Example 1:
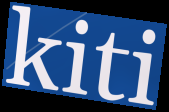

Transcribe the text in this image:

kiti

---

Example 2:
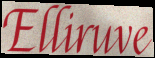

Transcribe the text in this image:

Elliruve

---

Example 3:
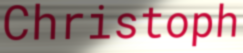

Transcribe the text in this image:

Christoph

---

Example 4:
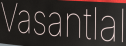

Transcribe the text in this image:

Vasantlal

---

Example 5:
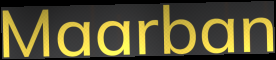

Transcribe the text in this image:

Maarban